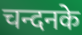
चन्दनके